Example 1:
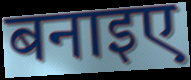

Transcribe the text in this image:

बनाइए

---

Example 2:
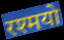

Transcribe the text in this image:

रश्मयो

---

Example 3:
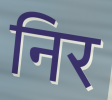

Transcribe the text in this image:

निर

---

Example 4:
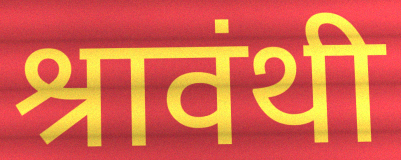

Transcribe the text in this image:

श्रावंथी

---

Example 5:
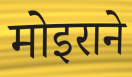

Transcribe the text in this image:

मोइराने